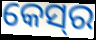
କେସ୍‌ର